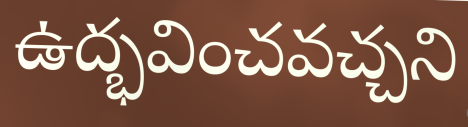
ఉద్భవించవచ్చని